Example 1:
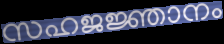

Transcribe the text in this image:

സഹജജ്ഞാനം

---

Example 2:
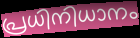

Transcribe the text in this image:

പ്രധിനിധാനം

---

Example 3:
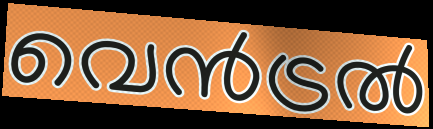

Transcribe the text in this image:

വെൻട്രൽ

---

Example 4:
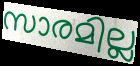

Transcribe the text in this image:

സാരമില്ല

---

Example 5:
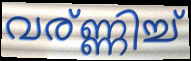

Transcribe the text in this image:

വര്ണ്ണിച്ച്